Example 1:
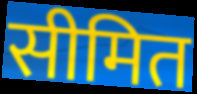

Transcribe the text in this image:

सीमित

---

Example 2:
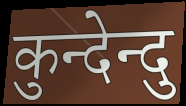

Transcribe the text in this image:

कुन्देन्दु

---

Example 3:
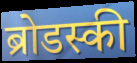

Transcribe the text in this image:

ब्रोडस्की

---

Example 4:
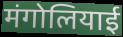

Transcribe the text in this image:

मंगोलियाई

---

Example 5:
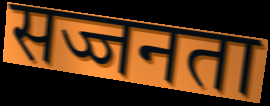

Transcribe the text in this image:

सज्जनता